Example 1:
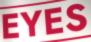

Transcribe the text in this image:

EYES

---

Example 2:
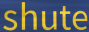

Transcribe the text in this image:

shute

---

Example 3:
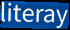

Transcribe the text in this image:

literay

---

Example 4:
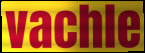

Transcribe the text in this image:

vachle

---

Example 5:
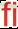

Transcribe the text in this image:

fi